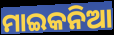
ମାଇକନିଆ